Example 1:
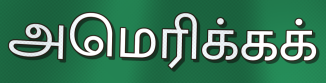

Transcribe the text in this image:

அமெரிக்கக்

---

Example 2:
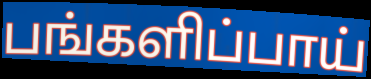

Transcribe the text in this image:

பங்களிப்பாய்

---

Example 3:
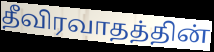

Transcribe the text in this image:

தீவிரவாதத்தின்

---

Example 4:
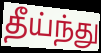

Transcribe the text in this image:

தீய்ந்து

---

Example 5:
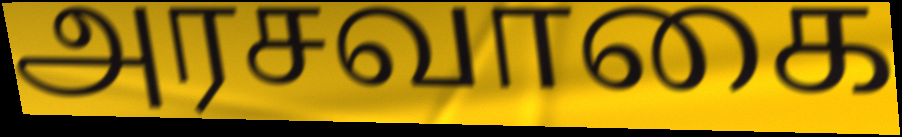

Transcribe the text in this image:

அரசவாகை